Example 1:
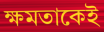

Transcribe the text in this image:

ক্ষমতাকেই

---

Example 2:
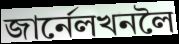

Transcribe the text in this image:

জাৰ্নেলখনলৈ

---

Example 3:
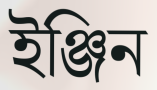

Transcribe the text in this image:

ইঞ্জিন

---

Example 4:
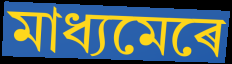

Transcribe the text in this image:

মাধ্যমেৰে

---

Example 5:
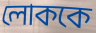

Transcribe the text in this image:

লোককে